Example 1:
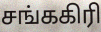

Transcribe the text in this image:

சங்ககிரி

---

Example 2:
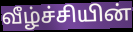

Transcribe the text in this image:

வீழ்ச்சியின்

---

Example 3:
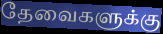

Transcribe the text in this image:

தேவைகளுக்கு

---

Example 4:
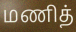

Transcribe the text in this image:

மணித்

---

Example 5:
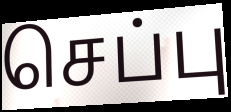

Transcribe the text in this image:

செப்பு